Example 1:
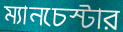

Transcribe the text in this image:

ম্যানচেস্টার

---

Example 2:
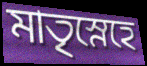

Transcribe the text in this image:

মাতৃস্নেহে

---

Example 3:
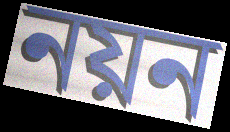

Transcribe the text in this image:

নয়ন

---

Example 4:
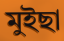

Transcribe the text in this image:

মুইছা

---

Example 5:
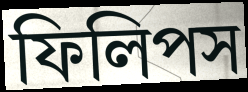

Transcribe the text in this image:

ফিলিপস